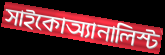
সাইকোঅ্যানালিস্ট